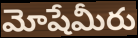
మోషేమీరు